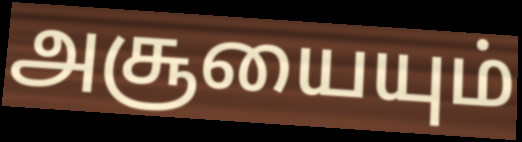
அசூயையும்